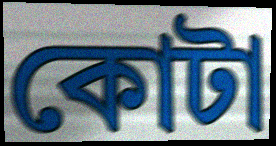
কোটা